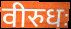
वीरुधः